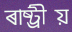
ৰাষ্ট্ৰীয়